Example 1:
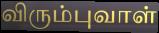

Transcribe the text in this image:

விரும்புவாள்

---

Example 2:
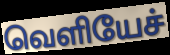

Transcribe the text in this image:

வெளியேச்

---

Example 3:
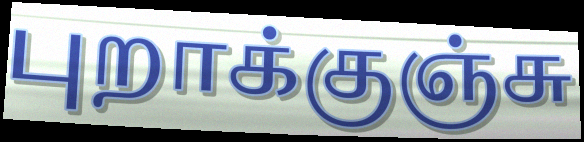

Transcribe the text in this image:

புறாக்குஞ்சு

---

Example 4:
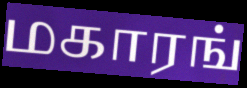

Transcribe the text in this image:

மகாரங்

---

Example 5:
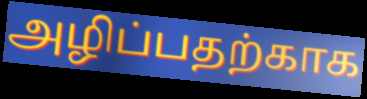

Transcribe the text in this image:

அழிப்பதற்காக